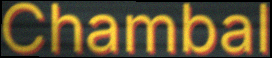
Chambal